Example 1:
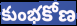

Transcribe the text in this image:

కుంభకోణ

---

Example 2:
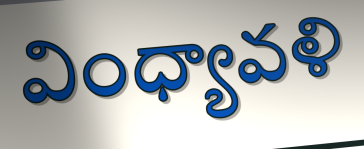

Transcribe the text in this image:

వింధ్యావళి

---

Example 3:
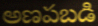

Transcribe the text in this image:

అణపబడి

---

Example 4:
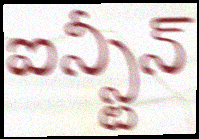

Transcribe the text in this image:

ఐన్స్టీన్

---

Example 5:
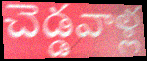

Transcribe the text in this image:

చెడ్డవాళ్ల